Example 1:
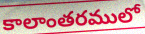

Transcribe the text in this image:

కాలాంతరములో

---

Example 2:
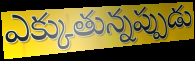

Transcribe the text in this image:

ఎక్కుతున్నప్పుడు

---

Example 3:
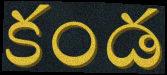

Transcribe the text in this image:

కండ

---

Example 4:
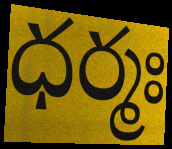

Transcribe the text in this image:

ధర్మః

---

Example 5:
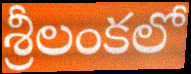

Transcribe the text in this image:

శ్రీలంకలో